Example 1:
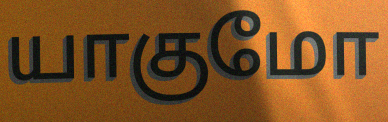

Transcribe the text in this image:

யாகுமோ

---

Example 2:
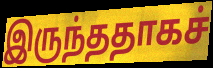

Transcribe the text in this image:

இருந்ததாகச்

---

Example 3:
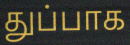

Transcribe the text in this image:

துப்பாக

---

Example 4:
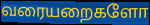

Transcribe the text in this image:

வரையறைகளோ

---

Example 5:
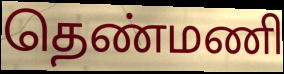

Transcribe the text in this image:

தெண்மணி